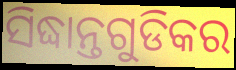
ସିଦ୍ଧାନ୍ତଗୁଡିକର